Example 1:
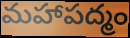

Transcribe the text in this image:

మహాపద్మం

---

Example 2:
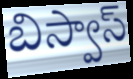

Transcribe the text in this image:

బిస్వాస్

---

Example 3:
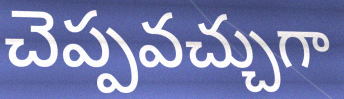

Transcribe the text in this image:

చెప్పవచ్చుగా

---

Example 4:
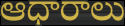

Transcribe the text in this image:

ఆధారాలు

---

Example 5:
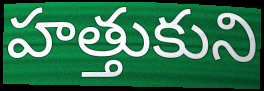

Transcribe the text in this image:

హత్తుకుని